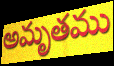
అమృతము